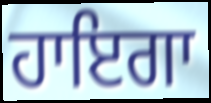
ਹਾਇਗਾ